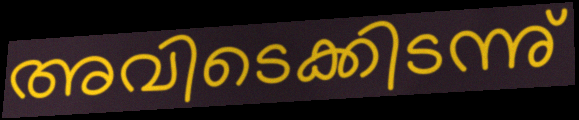
അവിടെക്കിടന്നു്